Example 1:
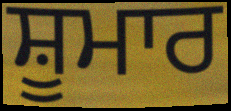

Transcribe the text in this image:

ਸ਼ੂਮਾਰ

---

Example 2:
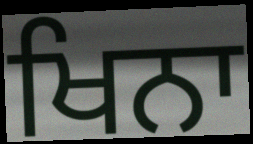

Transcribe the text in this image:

ਖਿਨਾ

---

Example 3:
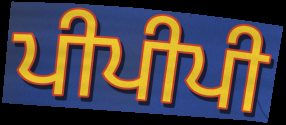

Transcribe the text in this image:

ਪੀਪੀਪੀ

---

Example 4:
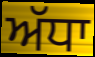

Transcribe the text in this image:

ਅੱਧਾ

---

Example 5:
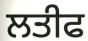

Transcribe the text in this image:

ਲਤੀਫ